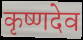
कृष्णदेव